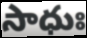
సాధుః